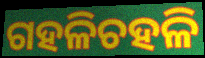
ଗହଳିଚହଳି